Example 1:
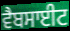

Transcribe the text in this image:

ਵੈਬਸਾਈਟ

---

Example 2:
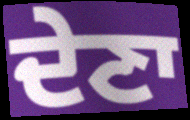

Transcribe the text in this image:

ਦੇਣਾ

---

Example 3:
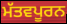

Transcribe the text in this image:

ਮੱਤਵਪੂਰਨ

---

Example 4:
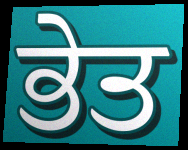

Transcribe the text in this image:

ਭੇਤ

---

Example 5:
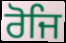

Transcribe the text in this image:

ਰੋਜਿ